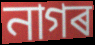
নাগৰ